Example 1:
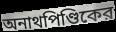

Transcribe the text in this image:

অনাথপিণ্ডিকের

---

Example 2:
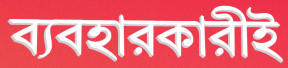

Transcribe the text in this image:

ব্যবহারকারীই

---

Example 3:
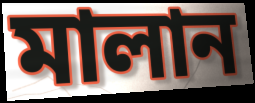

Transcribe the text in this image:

মালান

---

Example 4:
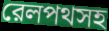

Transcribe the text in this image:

রেলপথসহ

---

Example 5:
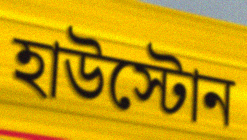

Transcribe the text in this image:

হাউস্টোন